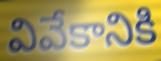
వివేకానికి